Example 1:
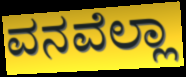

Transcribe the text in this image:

ವನವೆಲ್ಲಾ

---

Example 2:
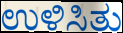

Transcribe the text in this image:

ಉಳಿಸಿತು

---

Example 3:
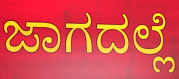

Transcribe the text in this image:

ಜಾಗದಲ್ಲೆ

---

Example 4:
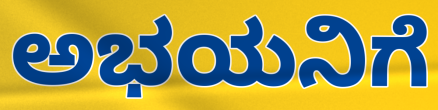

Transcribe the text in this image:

ಅಭಯನಿಗೆ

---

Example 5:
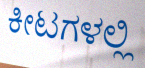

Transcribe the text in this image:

ಕೀಟಗಳಲ್ಲಿ